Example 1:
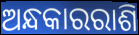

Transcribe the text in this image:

ଅନ୍ଧକାରରାଶି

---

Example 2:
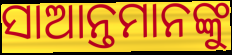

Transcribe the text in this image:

ସାଆନ୍ତମାନଙ୍କୁ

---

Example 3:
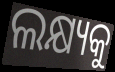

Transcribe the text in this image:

ଲକ୍ଷ୍ୟକୁ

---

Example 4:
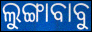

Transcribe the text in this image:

ଲୁଙ୍ଗାବାବୁ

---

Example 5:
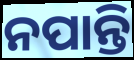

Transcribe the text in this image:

ନପାନ୍ତି